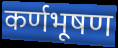
कर्णभूषण